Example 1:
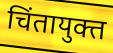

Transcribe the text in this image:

चिंतायुक्त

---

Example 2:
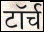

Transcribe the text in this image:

टॉर्च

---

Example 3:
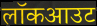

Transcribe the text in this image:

लॉकआउट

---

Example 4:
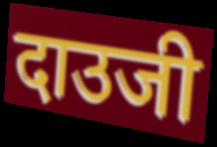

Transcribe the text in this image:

दाउजी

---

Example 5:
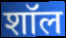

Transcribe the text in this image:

शॉल